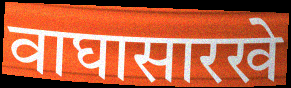
वाघासारखे